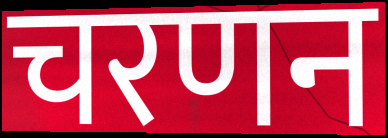
चरणन